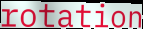
rotation